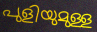
പുളിയുമുള്ള